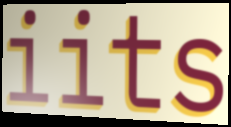
iits